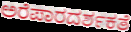
ಅರೆಪಾರದರ್ಶಕತೆ